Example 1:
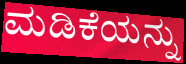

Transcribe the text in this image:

ಮಡಿಕೆಯನ್ನು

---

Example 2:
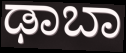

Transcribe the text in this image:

ಢಾಬಾ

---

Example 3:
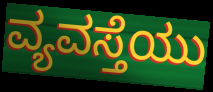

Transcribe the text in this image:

ವ್ಯವಸ್ತೆಯು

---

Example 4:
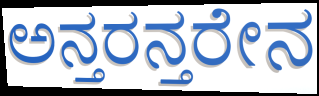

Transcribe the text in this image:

ಅನ್ತರನ್ತರೇನ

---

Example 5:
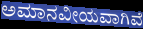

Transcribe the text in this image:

ಅಮಾನವೀಯವಾಗಿವೆ